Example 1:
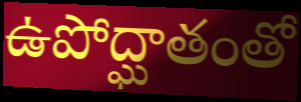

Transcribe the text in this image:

ఉపోద్ఘాతంతో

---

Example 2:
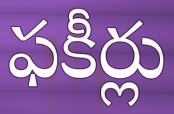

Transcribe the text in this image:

ఫకీర్లు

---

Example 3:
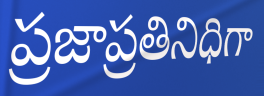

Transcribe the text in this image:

ప్రజాప్రతినిధిగా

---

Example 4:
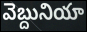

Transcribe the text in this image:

వెబ్దునియా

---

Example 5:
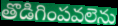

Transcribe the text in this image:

తొడిగింపవలెను